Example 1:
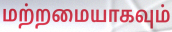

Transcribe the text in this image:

மற்றமையாகவும்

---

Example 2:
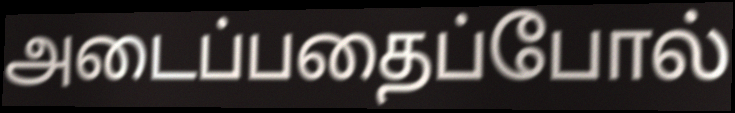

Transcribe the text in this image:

அடைப்பதைப்போல்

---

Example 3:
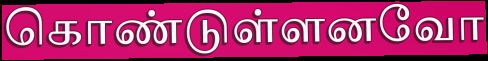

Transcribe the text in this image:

கொண்டுள்ளனவோ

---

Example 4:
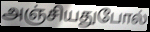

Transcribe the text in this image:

அஞ்சியதுபோல்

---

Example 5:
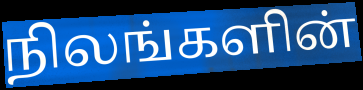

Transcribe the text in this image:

நிலங்களின்